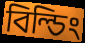
বিল্ডিং